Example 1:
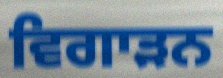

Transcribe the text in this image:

ਵਿਗਾੜਨ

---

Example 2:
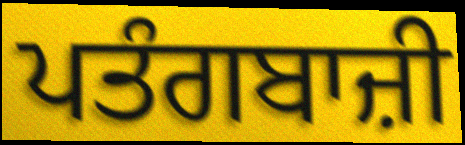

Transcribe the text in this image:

ਪਤੰਗਬਾਜ਼ੀ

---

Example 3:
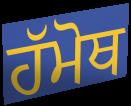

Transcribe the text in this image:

ਹੱਮੋਥ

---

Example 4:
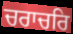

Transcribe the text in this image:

ਚਰਾਚਰਿ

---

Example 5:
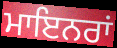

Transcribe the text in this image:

ਮਾਇਨਰਾਂ